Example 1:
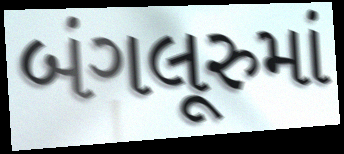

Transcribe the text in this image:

બંગલૂરુમાં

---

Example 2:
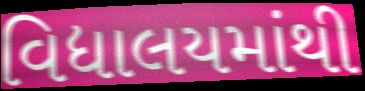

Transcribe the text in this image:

વિદ્યાલયમાંથી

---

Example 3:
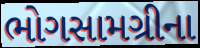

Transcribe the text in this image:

ભોગસામગ્રીના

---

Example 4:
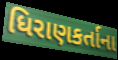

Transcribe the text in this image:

ધિરાણકર્તાના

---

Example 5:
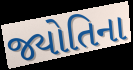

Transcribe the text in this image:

જ્યોતિના